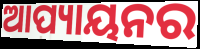
ଆପ୍ୟାୟନର